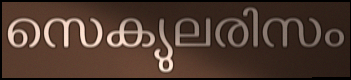
സെക്യുലരിസം